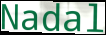
Nadal